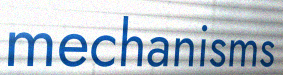
mechanisms